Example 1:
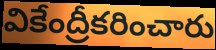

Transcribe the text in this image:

వికేంద్రీకరించారు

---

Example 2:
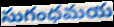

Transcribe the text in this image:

సుగంధమయ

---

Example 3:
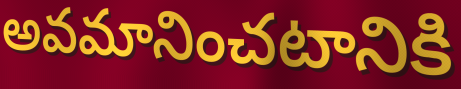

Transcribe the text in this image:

అవమానించటానికి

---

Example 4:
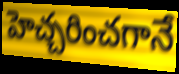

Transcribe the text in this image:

హెచ్చరించగానే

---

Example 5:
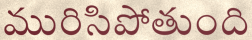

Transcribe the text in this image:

మురిసిపోతుంది